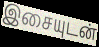
இசையுடன்